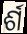
ର୍ଶ